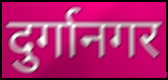
दुर्गानगर